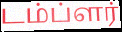
டம்ப்ளர்